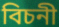
বিচনী